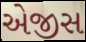
એજીસ